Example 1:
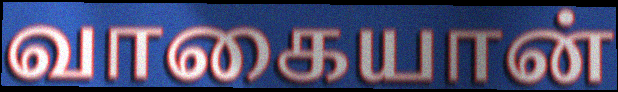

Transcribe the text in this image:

வாகையான்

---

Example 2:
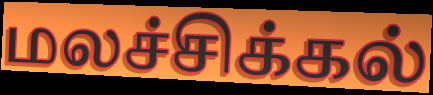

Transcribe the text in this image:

மலச்சிக்கல்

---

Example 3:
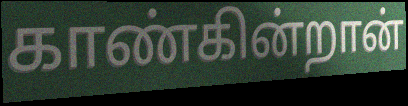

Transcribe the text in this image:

காண்கின்றான்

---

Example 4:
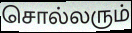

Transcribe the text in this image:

சொல்லரும்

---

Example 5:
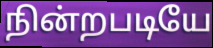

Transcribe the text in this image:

நின்றபடியே